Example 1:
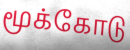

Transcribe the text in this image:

மூக்கோடு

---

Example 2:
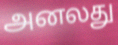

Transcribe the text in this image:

அனலது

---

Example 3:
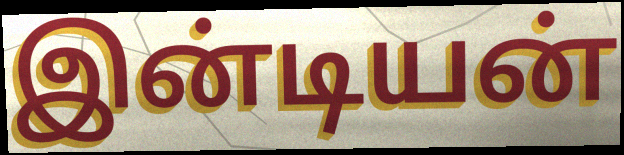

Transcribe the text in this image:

இன்டியன்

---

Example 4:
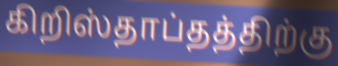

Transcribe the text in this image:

கிறிஸ்தாப்தத்திற்கு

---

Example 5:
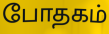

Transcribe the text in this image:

போதகம்